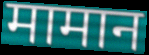
मामान